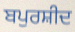
ਬਪੁਰਸ਼ੀਦ